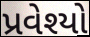
પ્રવેશ્યો